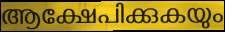
ആക്ഷേപിക്കുകയും